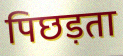
पिछड़ता